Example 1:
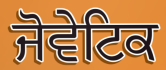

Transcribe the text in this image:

ਜੋਵੇਟਿਕ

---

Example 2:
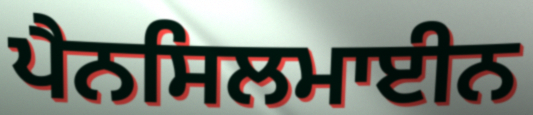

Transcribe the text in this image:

ਪੈਨਸਿਲਮਾਈਨ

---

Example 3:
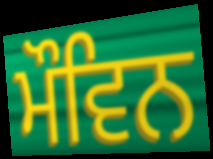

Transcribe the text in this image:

ਮੌਵਿਨ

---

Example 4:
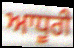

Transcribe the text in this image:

ਆਧੂਰੀ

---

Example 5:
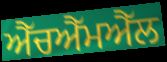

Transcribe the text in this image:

ਐੱਚਐੱਮਐੱਲ